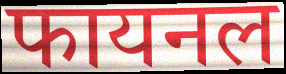
फायनल